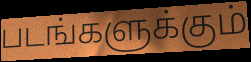
படங்களுக்கும்